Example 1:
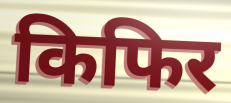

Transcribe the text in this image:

किफिर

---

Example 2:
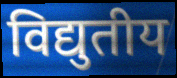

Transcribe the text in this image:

विद्युतीय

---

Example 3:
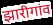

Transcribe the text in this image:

झारीगांव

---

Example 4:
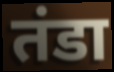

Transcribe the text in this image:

तंडा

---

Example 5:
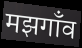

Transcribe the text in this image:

मझगाँव